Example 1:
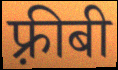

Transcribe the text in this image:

फ़्रीबी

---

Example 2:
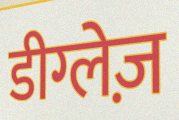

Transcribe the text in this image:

डीग्लेज़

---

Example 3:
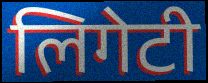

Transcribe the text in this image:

लिगेटी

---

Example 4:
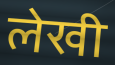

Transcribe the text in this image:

लेखी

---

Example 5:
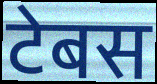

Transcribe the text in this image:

टेबस